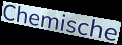
Chemische